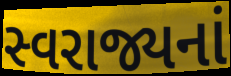
સ્વરાજ્યનાં